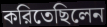
করিতেছিলেন